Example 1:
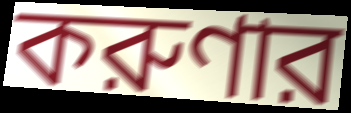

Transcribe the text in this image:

করুণার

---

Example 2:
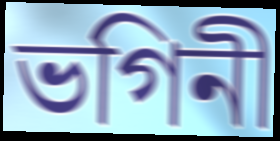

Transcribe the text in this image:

ভগিনী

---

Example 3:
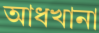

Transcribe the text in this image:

আধখানা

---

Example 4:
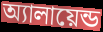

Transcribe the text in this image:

অ্যালায়েন্ড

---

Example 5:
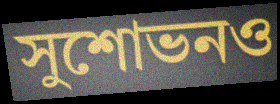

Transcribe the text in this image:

সুশোভনও